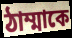
ঠাম্মাকে